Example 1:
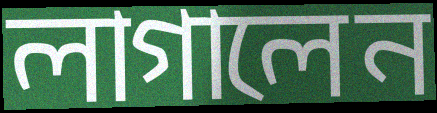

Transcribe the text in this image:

লাগালেন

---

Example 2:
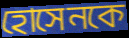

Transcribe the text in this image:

হোসেনকে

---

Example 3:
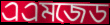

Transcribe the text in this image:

এএমজেড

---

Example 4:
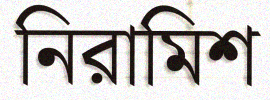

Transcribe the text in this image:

নিরামিশ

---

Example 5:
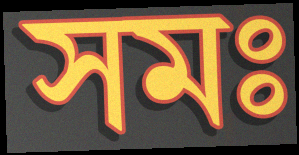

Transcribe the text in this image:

সমঃ